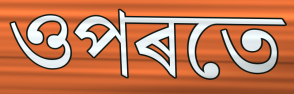
ওপৰতে